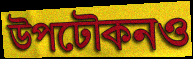
উপঢৌকনও